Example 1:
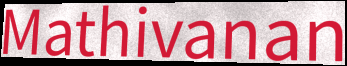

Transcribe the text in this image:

Mathivanan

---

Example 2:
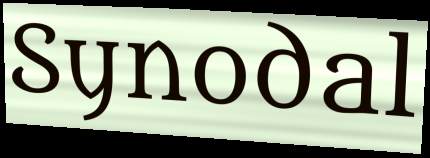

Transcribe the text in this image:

Synodal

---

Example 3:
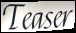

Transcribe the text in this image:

Teaser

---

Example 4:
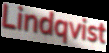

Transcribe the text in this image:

Lindqvist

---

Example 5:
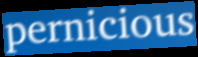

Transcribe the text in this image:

pernicious